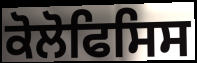
ਕੋਲੋਫਿਸਿਸ